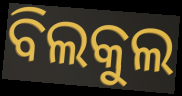
ବିଲକୁଲ